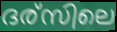
ദര്സിലെ